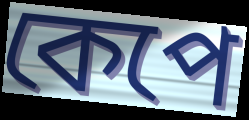
কেপে